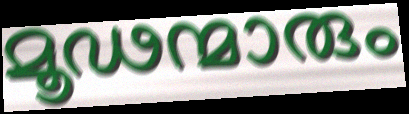
മൂഢന്മാരും